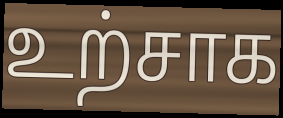
உற்சாக